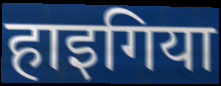
हाइगिया